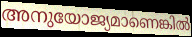
അനുയോജ്യമാണെങ്കിൽ